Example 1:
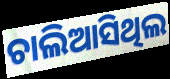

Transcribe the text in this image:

ଚାଲିଆସିଥିଲ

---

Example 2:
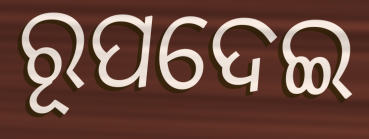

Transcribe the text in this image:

ରୂପଦେଇ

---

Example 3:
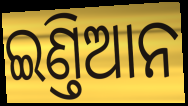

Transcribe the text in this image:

ଇଣ୍ତିଆନ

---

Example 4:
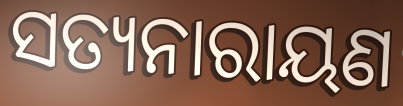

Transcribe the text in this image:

ସତ୍ୟନାରାୟଣ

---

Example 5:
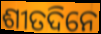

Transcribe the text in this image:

ଶୀତଦିନେ